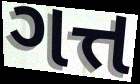
ગત્ત